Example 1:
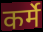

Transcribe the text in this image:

कर्मे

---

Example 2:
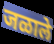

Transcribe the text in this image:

जळाले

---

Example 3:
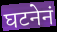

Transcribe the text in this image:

घटनेनं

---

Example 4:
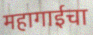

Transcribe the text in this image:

महागाईचा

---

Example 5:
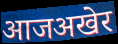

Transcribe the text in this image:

आजअखेर